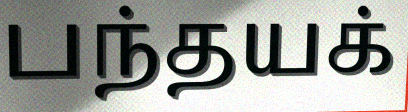
பந்தயக்